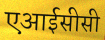
एआईसीसी